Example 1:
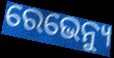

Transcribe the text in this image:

ରେଭେନ୍ୟୁ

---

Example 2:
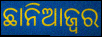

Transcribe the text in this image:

ଛାନିଆଜ୍ୱର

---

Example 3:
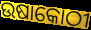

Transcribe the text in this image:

ଉଷାକୋଠୀ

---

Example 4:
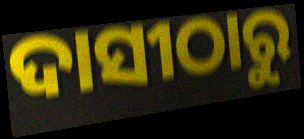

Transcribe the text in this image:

ଦାସୀଠାରୁ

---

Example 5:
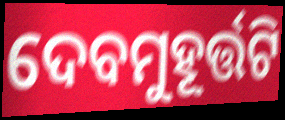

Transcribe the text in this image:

ଦେବମୁହୂର୍ତ୍ତଟି